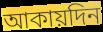
আকায়দিন